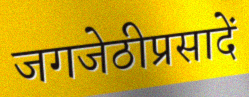
जगजेठीप्रसादें